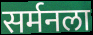
सर्मनला